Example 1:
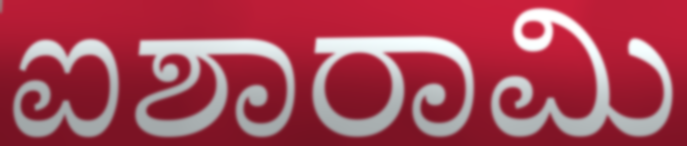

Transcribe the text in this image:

ಐಶಾರಾಮಿ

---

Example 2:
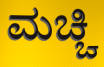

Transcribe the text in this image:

ಮಚ್ಚಿ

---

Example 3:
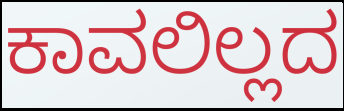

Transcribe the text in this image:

ಕಾವಲಿಲ್ಲದ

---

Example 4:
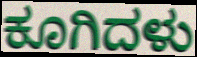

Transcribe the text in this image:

ಕೂಗಿದಳು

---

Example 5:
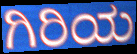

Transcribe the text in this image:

ಗಿರಿಯ